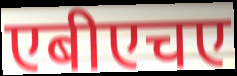
एबीएचए